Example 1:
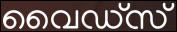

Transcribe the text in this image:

വൈഡ്സ്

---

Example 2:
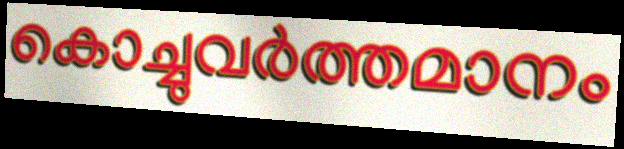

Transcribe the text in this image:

കൊച്ചുവർത്തമാനം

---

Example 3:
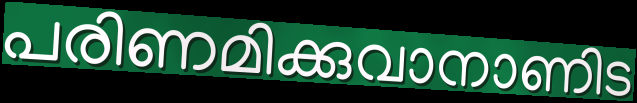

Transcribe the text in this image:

പരിണമിക്കുവാനാണിട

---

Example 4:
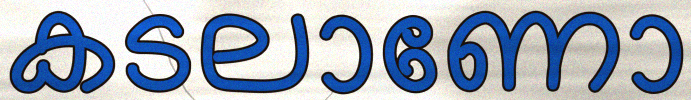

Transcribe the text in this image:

കടലാണോ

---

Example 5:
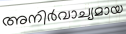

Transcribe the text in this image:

അനിർവാച്യമായ